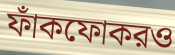
ফাঁকফোকরও